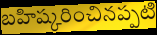
బహిష్కరించినప్పటి